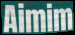
Aimim